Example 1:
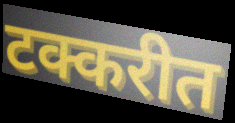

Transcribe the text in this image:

टक्करीत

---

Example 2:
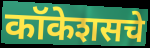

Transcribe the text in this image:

कॉकेशसचे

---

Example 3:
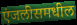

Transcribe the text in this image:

एंजलीसमधील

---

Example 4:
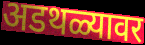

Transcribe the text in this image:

अडथळ्यावर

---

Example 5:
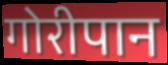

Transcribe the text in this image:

गोरीपान